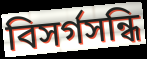
বিসর্গসন্ধি